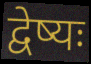
द्वेष्यः